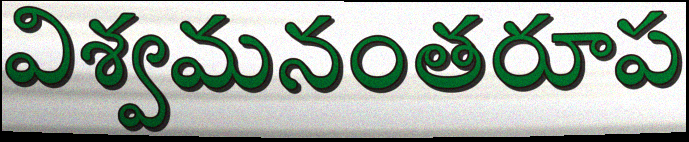
విశ్వమనంతరూప